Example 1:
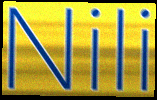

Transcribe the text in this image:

Nili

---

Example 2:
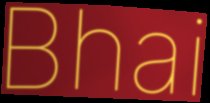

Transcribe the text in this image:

Bhai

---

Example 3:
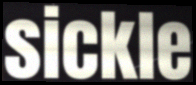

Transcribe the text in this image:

sickle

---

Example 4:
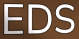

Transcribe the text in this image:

EDS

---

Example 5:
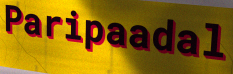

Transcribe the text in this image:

Paripaadal